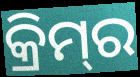
କ୍ରିମ୍‌ର